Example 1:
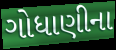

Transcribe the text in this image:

ગોધાણીના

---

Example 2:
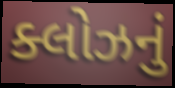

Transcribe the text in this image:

ક્લોઝનું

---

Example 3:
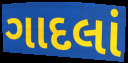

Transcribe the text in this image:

ગાદલાં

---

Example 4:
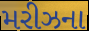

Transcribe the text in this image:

મરીઝના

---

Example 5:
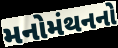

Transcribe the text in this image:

મનોમંથનનો